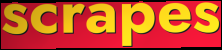
scrapes